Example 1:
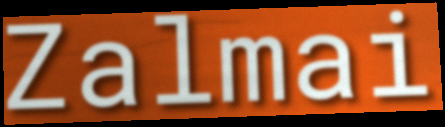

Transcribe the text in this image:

Zalmai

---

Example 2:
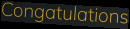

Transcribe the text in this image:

Congatulations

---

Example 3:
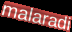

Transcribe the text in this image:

malaradi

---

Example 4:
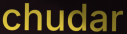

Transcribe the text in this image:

chudar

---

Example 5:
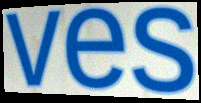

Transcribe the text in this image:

ves